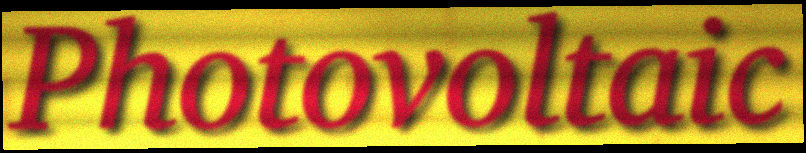
Photovoltaic